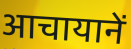
आचायानें